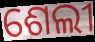
ଶେଲୀ